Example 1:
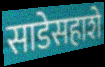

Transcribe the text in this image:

साडेसहाशे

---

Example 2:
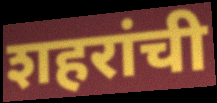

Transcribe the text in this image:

शहरांची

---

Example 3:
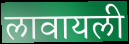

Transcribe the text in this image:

लावायली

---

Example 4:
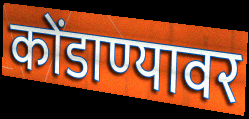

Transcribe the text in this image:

कोंडाण्यावर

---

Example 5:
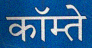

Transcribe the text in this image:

कॉम्ते